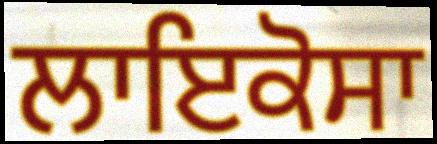
ਲਾਇਕੋਸਾ